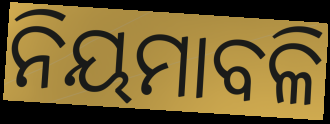
ନିୟମାବଳି